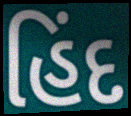
હિંદ